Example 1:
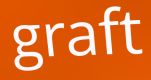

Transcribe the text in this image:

graft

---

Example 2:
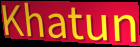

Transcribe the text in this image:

Khatun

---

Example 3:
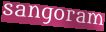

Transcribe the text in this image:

sangoram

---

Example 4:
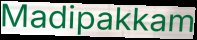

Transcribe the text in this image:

Madipakkam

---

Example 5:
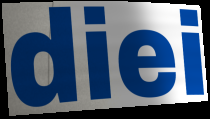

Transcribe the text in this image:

diei